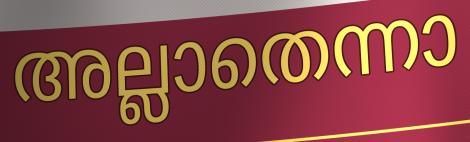
അല്ലാതെന്നാ